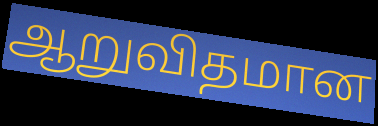
ஆறுவிதமான